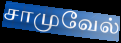
சாமுவேல்